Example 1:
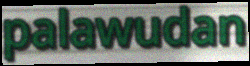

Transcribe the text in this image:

palawudan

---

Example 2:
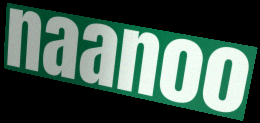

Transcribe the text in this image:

naanoo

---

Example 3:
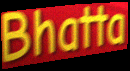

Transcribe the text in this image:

Bhatta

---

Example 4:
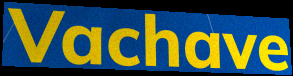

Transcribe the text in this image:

Vachave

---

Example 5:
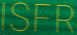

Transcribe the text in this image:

ISFR